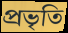
প্রভৃতি